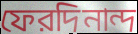
ফেরদিনান্দ